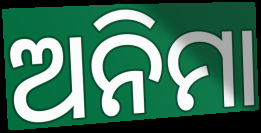
ଅନିମା